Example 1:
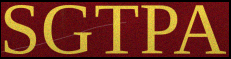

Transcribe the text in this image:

SGTPA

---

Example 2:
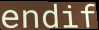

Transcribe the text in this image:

endif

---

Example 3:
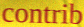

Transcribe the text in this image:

contrib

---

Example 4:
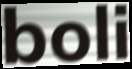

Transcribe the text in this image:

boli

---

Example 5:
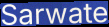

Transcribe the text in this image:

Sarwate